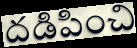
దడిపించి